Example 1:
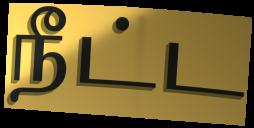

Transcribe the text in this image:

நீட்ட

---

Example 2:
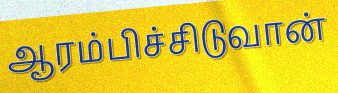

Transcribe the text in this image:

ஆரம்பிச்சிடுவான்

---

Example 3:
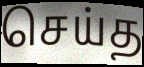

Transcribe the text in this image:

செய்த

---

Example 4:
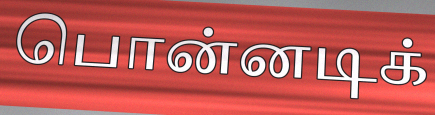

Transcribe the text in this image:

பொன்னடிக்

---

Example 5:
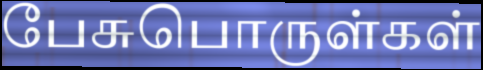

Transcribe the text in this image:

பேசுபொருள்கள்